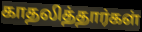
காதலித்தார்கள்